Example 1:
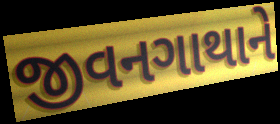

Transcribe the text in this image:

જીવનગાથાને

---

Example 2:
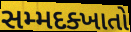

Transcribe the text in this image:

સમ્મદક્ખાતો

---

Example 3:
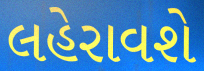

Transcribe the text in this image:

લહેરાવશે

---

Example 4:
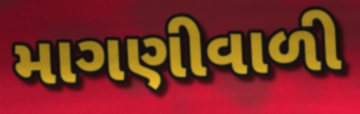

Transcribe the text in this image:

માગણીવાળી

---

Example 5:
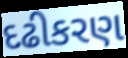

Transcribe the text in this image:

દઢીકરણ